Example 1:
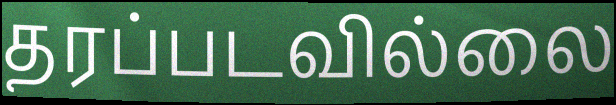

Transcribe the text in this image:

தரப்படவில்லை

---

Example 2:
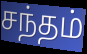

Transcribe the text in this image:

சந்தம்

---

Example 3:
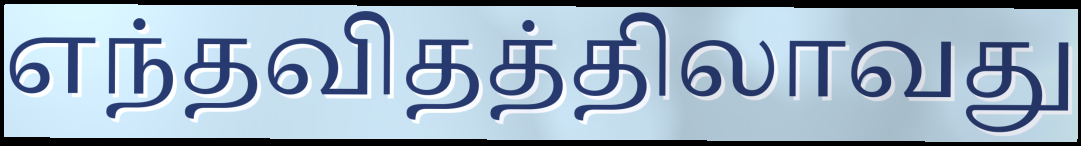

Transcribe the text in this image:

எந்தவிதத்திலாவது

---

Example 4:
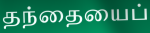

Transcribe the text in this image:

தந்தையைப்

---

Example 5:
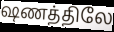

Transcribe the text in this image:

ஷணத்திலே